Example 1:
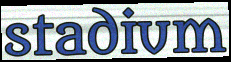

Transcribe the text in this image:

stadium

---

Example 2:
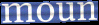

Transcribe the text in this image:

moun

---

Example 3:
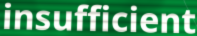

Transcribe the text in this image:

insufficient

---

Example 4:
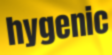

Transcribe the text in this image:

hygenic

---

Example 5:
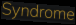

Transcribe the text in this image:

Syndrome